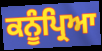
ਕਨੂੰਪ੍ਰਿਆ